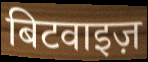
बिटवाइज़